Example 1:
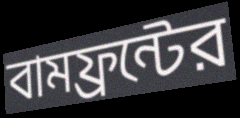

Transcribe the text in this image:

বামফ্রন্টের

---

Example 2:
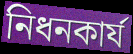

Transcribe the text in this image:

নিধনকার্য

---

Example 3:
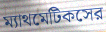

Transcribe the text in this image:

ম্যাথমেটিকসের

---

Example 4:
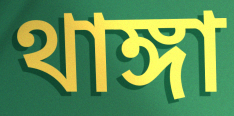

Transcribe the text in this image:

থাঙ্গা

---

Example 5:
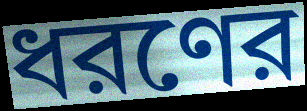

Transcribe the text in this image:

ধরণের